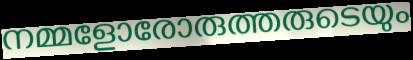
നമ്മളോരോരുത്തരുടെയും